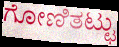
ಗೋಣಿತಟ್ಟು